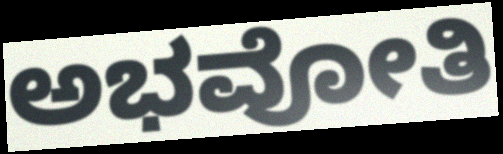
ಅಭವೋತಿ